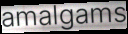
amalgams